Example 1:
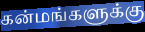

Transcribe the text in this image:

கன்மங்களுக்கு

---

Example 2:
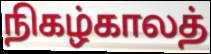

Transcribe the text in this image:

நிகழ்காலத்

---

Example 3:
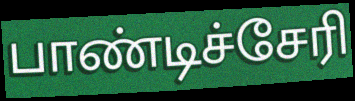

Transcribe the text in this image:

பாண்டிச்சேரி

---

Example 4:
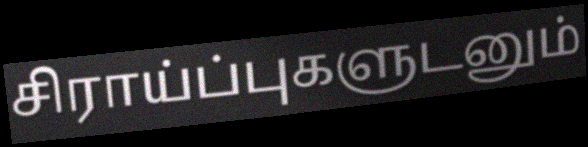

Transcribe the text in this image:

சிராய்ப்புகளுடனும்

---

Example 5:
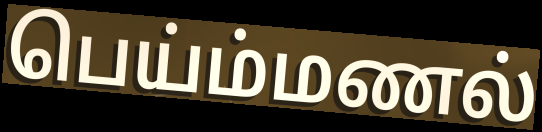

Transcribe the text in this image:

பெய்ம்மணல்